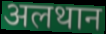
अलथान